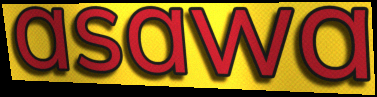
asawa